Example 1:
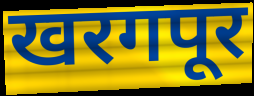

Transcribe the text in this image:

खरगपूर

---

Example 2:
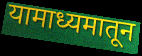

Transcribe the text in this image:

यामाध्यमातून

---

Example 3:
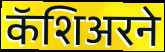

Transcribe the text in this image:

कॅशिअरने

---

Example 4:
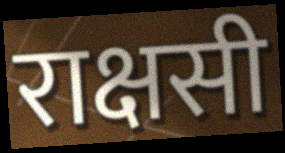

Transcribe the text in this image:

राक्षसी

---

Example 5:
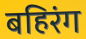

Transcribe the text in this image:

बहिरंग